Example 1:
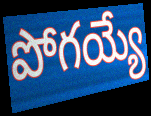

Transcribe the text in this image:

పోగయ్యే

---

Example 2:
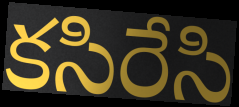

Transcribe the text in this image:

కసిరేసి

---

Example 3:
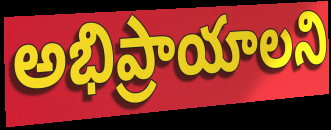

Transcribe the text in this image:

అభిప్రాయాలని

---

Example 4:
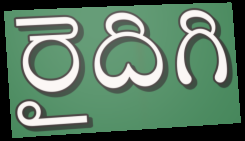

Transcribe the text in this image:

రైదిగి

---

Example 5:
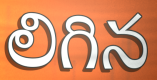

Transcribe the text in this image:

లిగిన